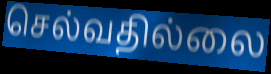
செல்வதில்லை